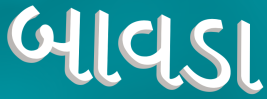
બાવડા